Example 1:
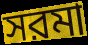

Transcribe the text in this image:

সরমা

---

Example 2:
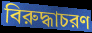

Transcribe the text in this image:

বিরুদ্ধাচরণ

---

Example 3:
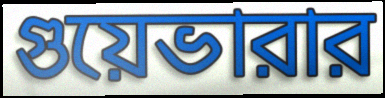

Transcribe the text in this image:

গুয়েভারার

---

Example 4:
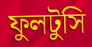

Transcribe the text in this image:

ফুলটুসি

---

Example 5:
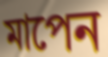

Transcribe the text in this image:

মাপেন